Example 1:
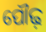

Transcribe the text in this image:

ପୌଢ଼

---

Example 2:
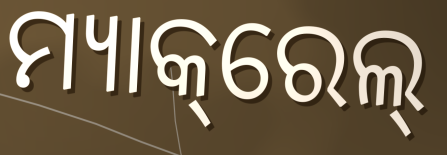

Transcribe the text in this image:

ମ୍ୟାକ୍‌ରେଲ୍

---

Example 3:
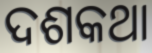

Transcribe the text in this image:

ଦଶକଥା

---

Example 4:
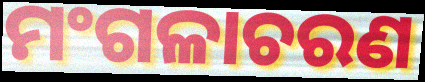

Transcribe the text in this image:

ମଂଗଳାଚରଣ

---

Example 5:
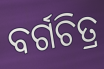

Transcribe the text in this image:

ବର୍ଗଚିତ୍ର